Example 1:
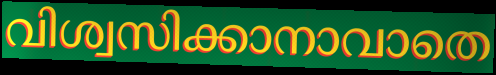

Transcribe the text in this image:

വിശ്വസിക്കാനാവാതെ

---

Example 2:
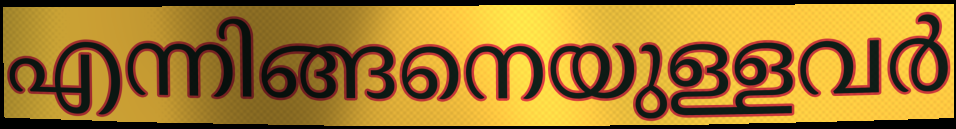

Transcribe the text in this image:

എന്നിങ്ങനെയുള്ളവർ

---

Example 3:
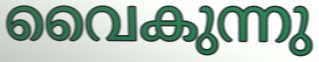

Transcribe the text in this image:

വൈകുന്നു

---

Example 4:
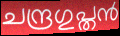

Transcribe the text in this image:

ചന്ദ്രഗുപ്തൻ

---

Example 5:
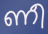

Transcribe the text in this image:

ണീ